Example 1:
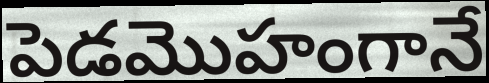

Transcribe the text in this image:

పెడమొహంగానే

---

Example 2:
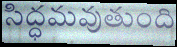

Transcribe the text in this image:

సిద్ధమవుతుంది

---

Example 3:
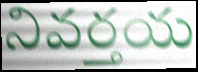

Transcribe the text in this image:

నివర్తయ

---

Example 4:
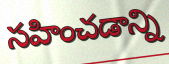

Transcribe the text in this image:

సహించడాన్ని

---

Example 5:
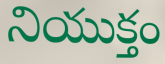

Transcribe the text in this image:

నియుక్తం